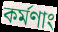
কর্মণাং